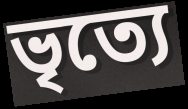
ভৃত্যে